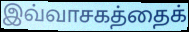
இவ்வாசகத்தைக்